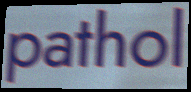
pathol